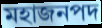
মহাজনপদ